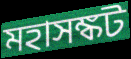
মহাসঙ্কট